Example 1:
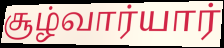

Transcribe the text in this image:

சூழ்வார்யார்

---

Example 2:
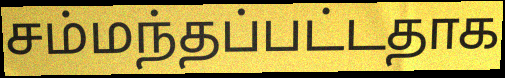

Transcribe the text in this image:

சம்மந்தப்பட்டதாக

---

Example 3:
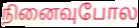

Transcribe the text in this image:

நினைவுபோல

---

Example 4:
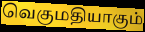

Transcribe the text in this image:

வெகுமதியாகும்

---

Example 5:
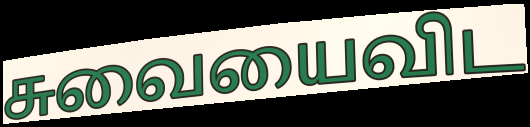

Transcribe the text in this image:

சுவையைவிட